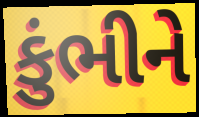
કુંભીને